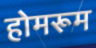
होमरूम